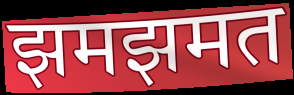
झमझमत